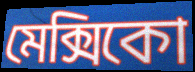
মেক্সিকো